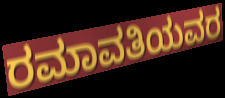
ರಮಾವತಿಯವರ